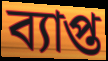
ব্যাপ্ত